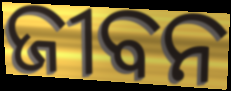
ଜୀବନ